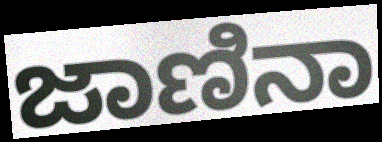
ಜಾಣಿನಾ